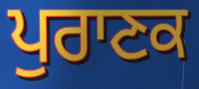
ਪੁਰਾਣਕ